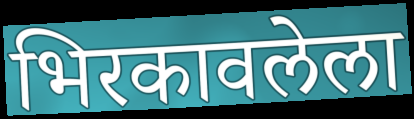
भिरकावलेला